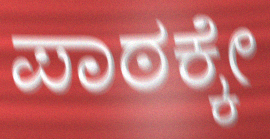
ಪಾಠಕ್ಕೇ